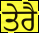
ਤੇਰੈ